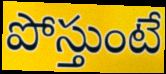
పోస్తుంటే